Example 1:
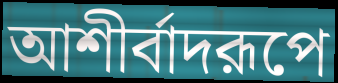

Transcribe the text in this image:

আশীর্বাদরূপে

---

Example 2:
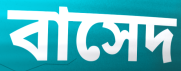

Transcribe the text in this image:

বাসেদ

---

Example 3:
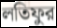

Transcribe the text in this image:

লতিফুর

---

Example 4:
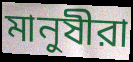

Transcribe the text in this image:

মানুষীরা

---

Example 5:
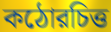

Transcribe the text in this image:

কঠোরচিত্ত